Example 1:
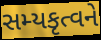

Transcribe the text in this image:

સમ્યકૃત્વને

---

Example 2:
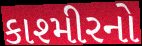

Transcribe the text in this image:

કાશ્મીરનો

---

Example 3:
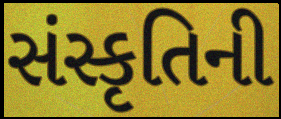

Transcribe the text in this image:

સંસ્કૃતિની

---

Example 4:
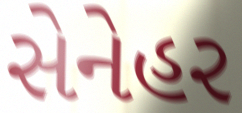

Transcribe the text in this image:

સેનેહર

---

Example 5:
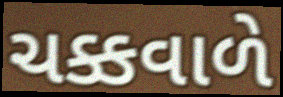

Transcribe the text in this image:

ચક્કવાળે